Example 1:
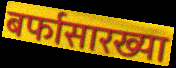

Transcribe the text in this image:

बर्फासारख्या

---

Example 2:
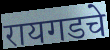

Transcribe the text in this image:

रायगडचे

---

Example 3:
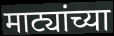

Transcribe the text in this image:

माट्यांच्या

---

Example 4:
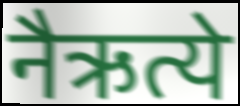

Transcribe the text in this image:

नैऋत्ये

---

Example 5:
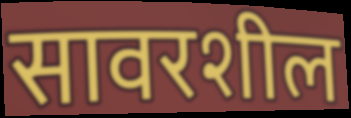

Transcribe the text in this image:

सावरशील